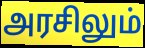
அரசிலும்